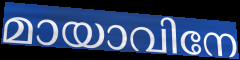
മായാവിനേ